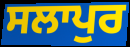
ਸਲਾਪੁਰ